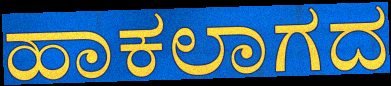
ಹಾಕಲಾಗದ